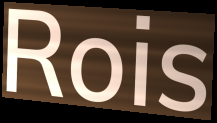
Rois